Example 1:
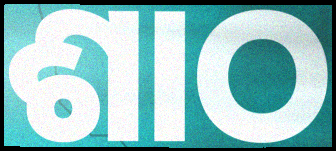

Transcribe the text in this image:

ଶାଠ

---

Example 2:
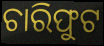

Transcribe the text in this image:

ଚାରିଫୁଟ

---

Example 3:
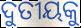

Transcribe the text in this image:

ଦୁତୀୟକୁ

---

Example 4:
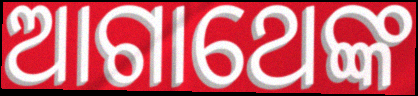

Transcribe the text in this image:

ଆଗାଥେଙ୍କ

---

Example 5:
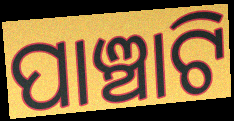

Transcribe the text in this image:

ପାଞ୍ଚାଟି